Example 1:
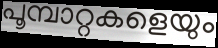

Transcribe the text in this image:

പൂമ്പാറ്റകളെയും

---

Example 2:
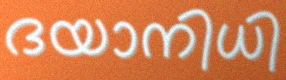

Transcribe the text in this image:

ദയാനിധി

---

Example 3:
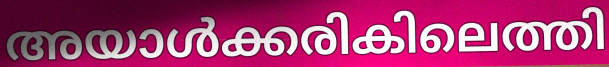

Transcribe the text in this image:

അയാൾക്കരികിലെത്തി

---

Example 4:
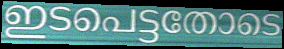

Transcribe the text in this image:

ഇടപെട്ടതോടെ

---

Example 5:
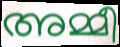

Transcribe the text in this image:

അമ്മീ